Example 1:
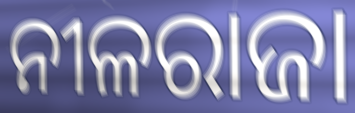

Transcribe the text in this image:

ନୀଳରାଜା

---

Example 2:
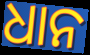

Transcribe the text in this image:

ଧାନ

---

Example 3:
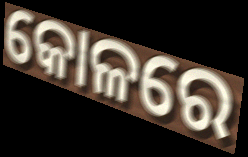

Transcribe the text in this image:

କୋଳରେ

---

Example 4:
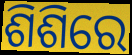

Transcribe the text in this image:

ଶିଶିରେ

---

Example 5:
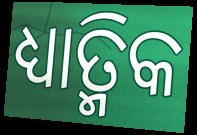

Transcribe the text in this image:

ଧ୍ୟାତ୍ମିକ